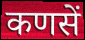
कणसें